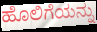
ಹೊಲಿಗೆಯನ್ನು